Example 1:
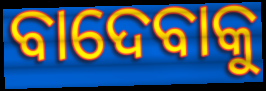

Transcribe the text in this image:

ବାଦେବାକୁ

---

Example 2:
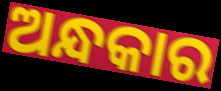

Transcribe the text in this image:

ଅନ୍ଧକାର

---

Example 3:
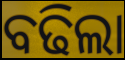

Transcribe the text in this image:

ବଢିଲା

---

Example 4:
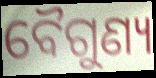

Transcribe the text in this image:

ବୈଗୁଣ୍ୟ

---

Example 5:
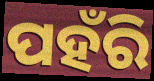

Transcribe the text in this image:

ପହଁରି